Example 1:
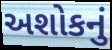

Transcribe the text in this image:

અશોકનું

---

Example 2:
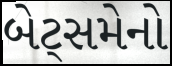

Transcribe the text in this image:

બેટ્સમેનો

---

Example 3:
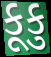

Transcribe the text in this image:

કૂકુ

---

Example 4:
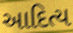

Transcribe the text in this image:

આદિત્ય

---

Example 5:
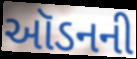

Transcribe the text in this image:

ઑડનની